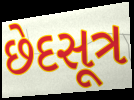
છેદસૂત્ર